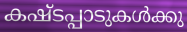
കഷ്ടപ്പാടുകൾക്കു